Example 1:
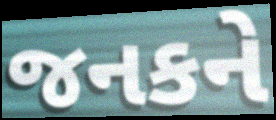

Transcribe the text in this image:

જનકને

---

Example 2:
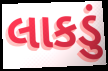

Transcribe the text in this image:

લાકડું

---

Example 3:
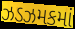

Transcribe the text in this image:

ઝડઝમકમાં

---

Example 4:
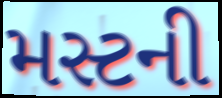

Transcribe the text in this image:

મસ્ટની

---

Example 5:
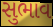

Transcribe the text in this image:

સુભાવ